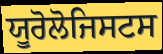
ਯੂਰੋਲੋਜਿਸਟਸ